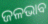
ଜଳଭାବ